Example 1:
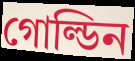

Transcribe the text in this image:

গোল্ডিন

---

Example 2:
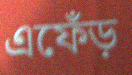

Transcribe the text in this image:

এফেঁড়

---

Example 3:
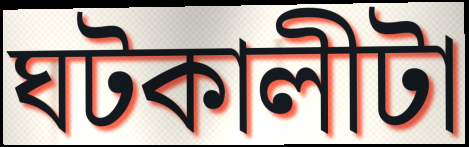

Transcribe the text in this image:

ঘটকালীটা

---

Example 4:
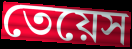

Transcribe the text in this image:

তেয়েস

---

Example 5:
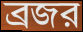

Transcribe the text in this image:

ব্রজর